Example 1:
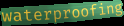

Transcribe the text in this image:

waterproofing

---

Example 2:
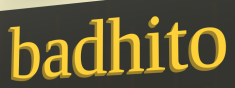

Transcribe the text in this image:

badhito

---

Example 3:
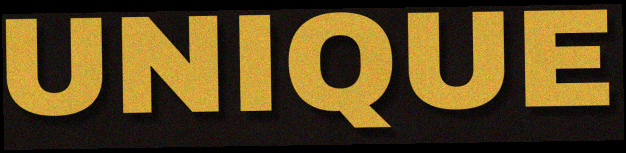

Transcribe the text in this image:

UNIQUE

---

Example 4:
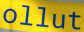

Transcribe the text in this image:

ollut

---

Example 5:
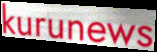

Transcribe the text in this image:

kurunews